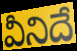
వీనిదే